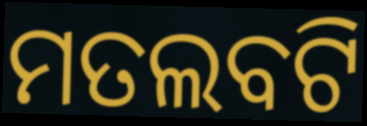
ମତଲବଟି